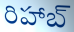
రిహాబ్